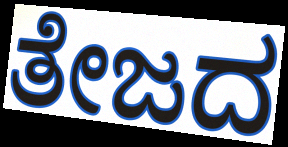
ತೇಜದ